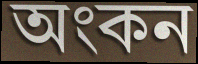
অংকন